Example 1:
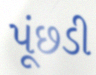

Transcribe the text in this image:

પૂંછડી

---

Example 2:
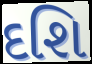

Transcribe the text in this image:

દશિ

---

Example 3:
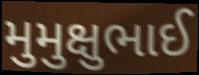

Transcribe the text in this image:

મુમુક્ષુભાઈ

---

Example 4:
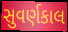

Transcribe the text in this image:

સુવર્ણકાલ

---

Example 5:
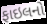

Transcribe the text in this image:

ફાઇલનો